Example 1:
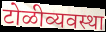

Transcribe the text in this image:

टोळीव्यवस्था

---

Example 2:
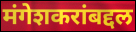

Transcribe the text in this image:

मंगेशकरांबद्दल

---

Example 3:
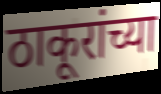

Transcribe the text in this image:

ठाकूरांच्या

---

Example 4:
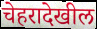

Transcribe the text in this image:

चेहरादेखील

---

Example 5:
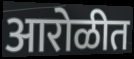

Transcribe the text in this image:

आरोळीत